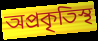
অপ্রকৃতিস্থ